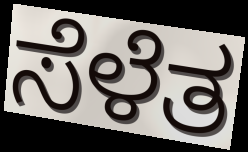
ಸೆಳೆತ